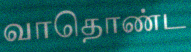
வாதொண்ட